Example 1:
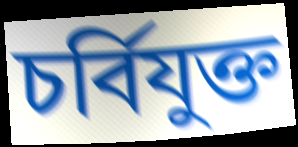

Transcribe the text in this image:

চৰ্বিযুক্ত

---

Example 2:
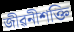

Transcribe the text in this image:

জীৱনীশক্তি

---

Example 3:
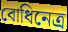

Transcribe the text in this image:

বোধিনেত্ৰ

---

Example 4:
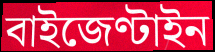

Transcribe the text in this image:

বাইজেণ্টাইন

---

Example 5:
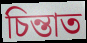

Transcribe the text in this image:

চিন্তাত